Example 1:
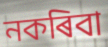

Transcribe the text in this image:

নকৰিবা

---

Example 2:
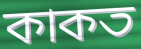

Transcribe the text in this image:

কাকত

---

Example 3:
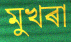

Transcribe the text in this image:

মুখৰা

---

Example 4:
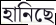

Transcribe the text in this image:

হানিছে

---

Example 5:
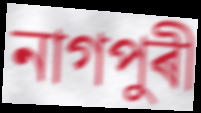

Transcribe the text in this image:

নাগপুৰী